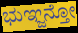
ಭುಞ್ಜನ್ತೋ